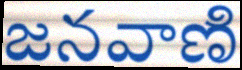
జనవాణి